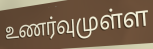
உணர்வுமுள்ள